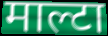
माल्टा